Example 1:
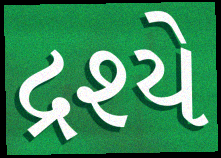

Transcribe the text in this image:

દ્રશ્યે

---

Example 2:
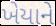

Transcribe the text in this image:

ખેયાને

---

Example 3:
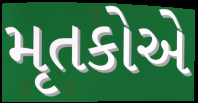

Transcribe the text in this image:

મૃતકોએ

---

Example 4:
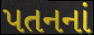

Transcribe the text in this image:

પતનનાં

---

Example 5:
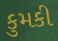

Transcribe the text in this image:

કુમકી